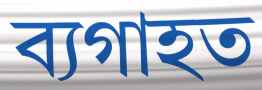
ব্যগাহত